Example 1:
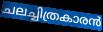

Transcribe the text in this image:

ചലച്ചിത്രകാരൻ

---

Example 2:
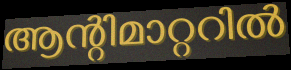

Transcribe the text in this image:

ആന്റിമാറ്ററിൽ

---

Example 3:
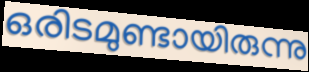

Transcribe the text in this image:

ഒരിടമുണ്ടായിരുന്നു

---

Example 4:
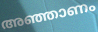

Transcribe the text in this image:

അഞ്ഞാണം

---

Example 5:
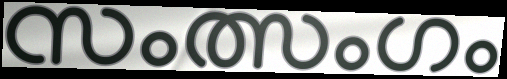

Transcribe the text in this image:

സംത്സംഗം